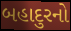
બહાદુરનો